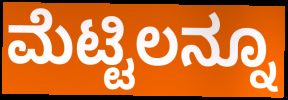
ಮೆಟ್ಟಿಲನ್ನೂ